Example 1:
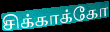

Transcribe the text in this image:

சிக்காக்கோ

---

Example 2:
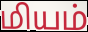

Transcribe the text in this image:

மியம்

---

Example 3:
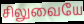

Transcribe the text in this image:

சிலுவையே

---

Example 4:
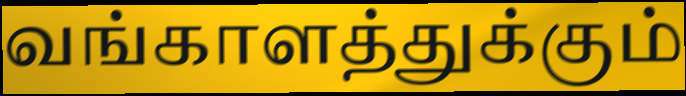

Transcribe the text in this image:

வங்காளத்துக்கும்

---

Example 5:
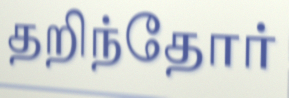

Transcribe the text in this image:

தறிந்தோர்